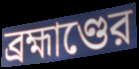
ব্রহ্মাণ্ডের